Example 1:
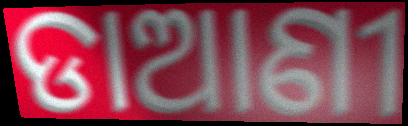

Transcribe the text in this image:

ଡାଆଣୀ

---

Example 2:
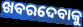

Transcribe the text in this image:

ଖବରଦେବାକୁ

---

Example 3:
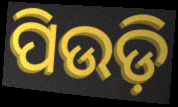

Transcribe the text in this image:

ପିଉଡ଼ି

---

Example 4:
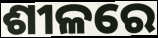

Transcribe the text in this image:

ଶୀଳରେ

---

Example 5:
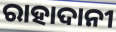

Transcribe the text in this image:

ରାହାଦାନୀ